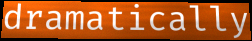
dramatically